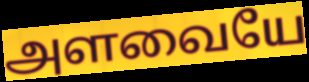
அளவையே